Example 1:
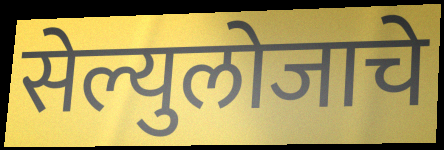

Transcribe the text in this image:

सेल्युलोजाचे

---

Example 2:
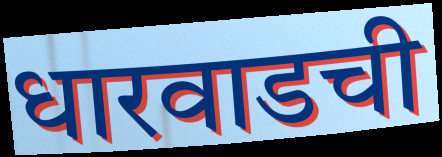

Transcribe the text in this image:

धारवाडची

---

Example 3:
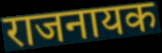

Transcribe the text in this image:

राजनायक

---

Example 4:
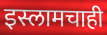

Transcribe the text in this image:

इस्लामचाही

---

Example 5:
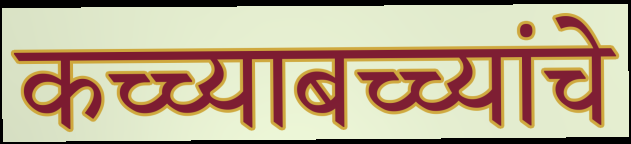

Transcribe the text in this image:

कच्च्याबच्च्यांचे